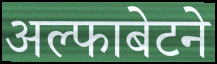
अल्फाबेटने